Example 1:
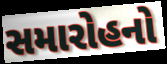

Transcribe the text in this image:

સમારોહનો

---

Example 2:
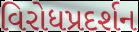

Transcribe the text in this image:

વિરોધપ્રદર્શન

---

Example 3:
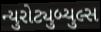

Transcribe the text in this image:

ન્યુરોટ્યુબ્યુલ્સ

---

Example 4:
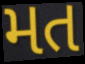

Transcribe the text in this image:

મત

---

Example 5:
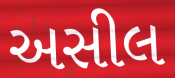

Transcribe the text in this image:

અસીલ